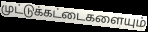
முட்டுக்கட்டைகளையும்